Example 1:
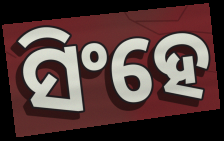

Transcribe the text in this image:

ସିଂହେ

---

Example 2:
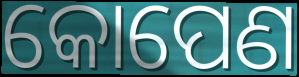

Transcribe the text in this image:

କୋପେଣ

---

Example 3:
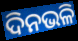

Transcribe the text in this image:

ଦିନଭଳି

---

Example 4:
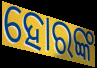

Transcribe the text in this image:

ହୋରଙ୍କ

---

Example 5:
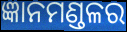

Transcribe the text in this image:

ଜ୍ଞାନମଣ୍ଡଳର